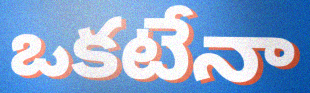
ఒకటేనా